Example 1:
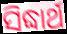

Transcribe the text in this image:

ସିଦ୍ଧାର୍ଥ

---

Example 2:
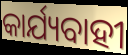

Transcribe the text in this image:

କାର୍ଯ୍ୟବାହୀ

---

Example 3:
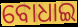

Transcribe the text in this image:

ବୋଧାଇ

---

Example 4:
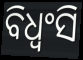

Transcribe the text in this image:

ବିଧ୍ୱଂସି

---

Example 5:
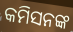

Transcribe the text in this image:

କମିସନଙ୍କ